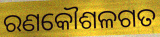
ରଣକୌଶଳଗତ